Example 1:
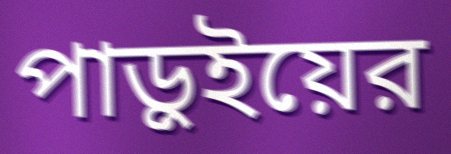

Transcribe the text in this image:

পাড়ুইয়ের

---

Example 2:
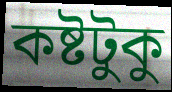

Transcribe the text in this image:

কষ্টটুকু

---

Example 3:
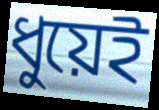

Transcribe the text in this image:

ধুয়েই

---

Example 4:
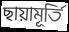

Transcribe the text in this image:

ছায়ামূর্তি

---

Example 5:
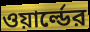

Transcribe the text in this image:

ওয়ার্ল্ডের